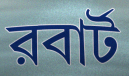
রবার্ট